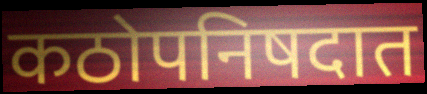
कठोपनिषदात